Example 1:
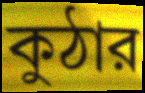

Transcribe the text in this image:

কুঠার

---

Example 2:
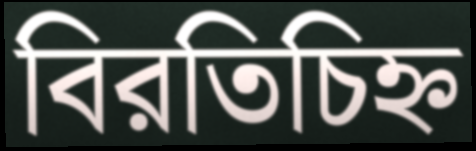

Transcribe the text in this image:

বিরতিচিহ্ন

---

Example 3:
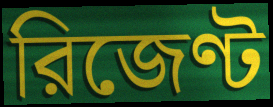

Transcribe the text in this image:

রিজেণ্ট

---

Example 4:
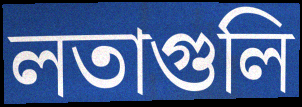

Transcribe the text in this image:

লতাগুলি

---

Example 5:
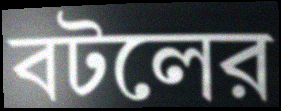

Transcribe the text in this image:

বটলের